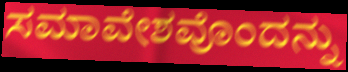
ಸಮಾವೇಶವೊಂದನ್ನು